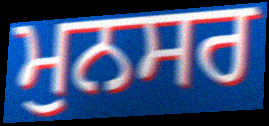
ਮੁਨਸਰ